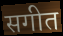
सगीत